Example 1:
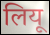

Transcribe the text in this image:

लियू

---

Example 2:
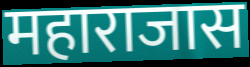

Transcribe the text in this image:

महाराजास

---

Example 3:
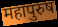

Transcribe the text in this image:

महापुरुष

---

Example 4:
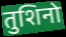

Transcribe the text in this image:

तुशिनो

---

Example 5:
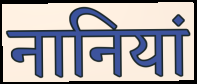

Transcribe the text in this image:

नानियां